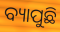
ବ୍ୟାପୁଛି